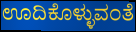
ಊದಿಕೊಳ್ಳುವಂತೆ